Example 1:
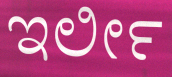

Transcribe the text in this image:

ಇರ್ಲೀ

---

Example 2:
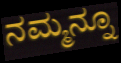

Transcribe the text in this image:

ನಮ್ಮನ್ನೂ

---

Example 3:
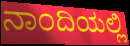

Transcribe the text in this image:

ನಾಂದಿಯಲ್ಲಿ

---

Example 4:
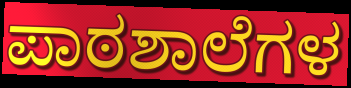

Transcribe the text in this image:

ಪಾಠಶಾಲೆಗಳ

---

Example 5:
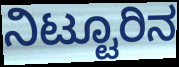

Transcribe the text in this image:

ನಿಟ್ಟೂರಿನ